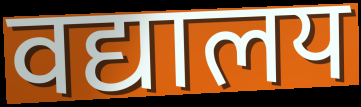
वद्यालय